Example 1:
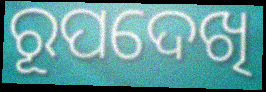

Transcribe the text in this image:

ରୂପଦେଖି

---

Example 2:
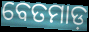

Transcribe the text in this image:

ବେତମାଡ଼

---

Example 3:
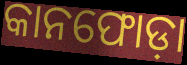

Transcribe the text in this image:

କାନଫୋଡ଼ା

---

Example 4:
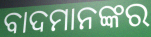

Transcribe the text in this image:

ବାଦମାନଙ୍କର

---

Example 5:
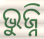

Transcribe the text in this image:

ଭୁଜ୍ନି